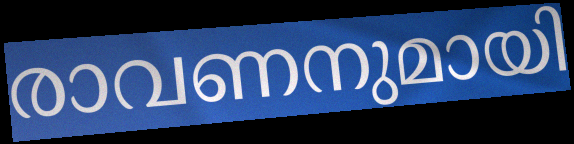
രാവണനുമായി